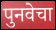
पुनवेचा